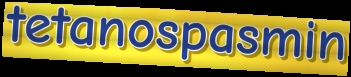
tetanospasmin